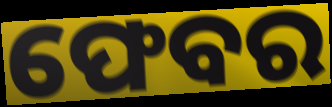
ଫେବର